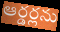
ఆర్డర్లను